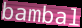
bambal